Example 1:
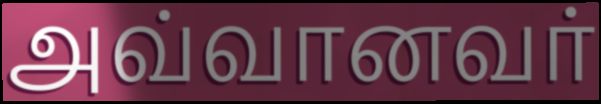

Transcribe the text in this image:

அவ்வானவர்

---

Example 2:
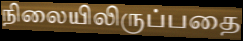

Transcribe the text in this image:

நிலையிலிருப்பதை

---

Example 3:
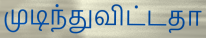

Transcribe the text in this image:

முடிந்துவிட்டதா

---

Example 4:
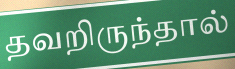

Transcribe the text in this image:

தவறிருந்தால்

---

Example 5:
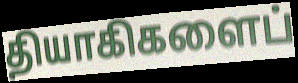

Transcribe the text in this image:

தியாகிகளைப்